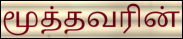
மூத்தவரின்